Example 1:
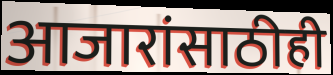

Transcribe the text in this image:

आजारांसाठीही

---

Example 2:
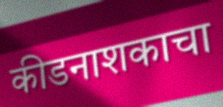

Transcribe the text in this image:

कीडनाशकाचा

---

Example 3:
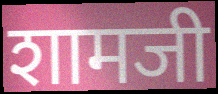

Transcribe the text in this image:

शामजी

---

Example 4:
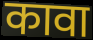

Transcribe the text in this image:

कावा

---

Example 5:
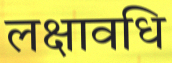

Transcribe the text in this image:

लक्षावधि